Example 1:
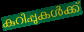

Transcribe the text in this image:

കുറിപ്പുകൾക്ക്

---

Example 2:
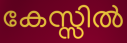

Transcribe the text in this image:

കേസ്സിൽ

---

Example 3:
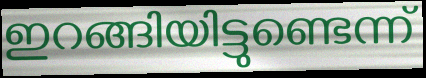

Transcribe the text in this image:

ഇറങ്ങിയിട്ടുണ്ടെന്ന്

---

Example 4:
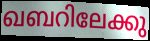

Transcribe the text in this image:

ഖബറിലേക്കു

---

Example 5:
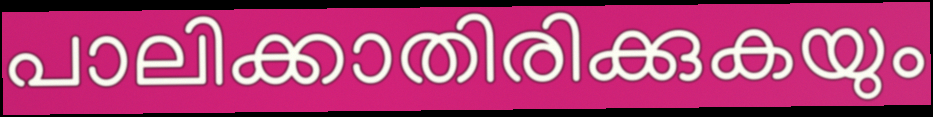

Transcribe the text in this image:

പാലിക്കാതിരിക്കുകയും